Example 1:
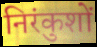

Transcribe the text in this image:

निरंकुशों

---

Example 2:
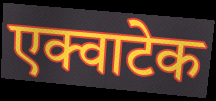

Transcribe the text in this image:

एक्वाटेक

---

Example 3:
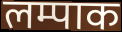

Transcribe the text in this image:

लम्पाक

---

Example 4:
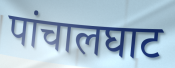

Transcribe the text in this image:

पांचालघाट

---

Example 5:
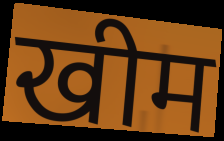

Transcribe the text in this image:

खीम